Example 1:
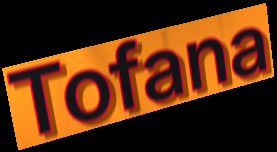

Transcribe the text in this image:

Tofana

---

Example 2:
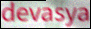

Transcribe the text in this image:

devasya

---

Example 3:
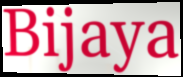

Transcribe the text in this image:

Bijaya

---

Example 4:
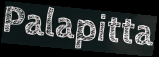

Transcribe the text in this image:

Palapitta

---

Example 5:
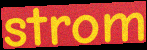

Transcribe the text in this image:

strom